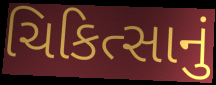
ચિકિત્સાનું